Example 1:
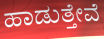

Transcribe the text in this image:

ಹಾಡುತ್ತೇವೆ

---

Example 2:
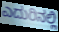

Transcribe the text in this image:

ಎದುರಿನಲ್ಲಿ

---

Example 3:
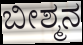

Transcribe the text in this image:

ಬೀಶ್ಮನ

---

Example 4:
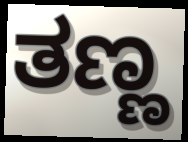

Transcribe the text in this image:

ತಣ್ಣ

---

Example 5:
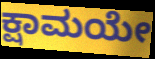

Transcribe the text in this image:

ಕ್ಷಾಮಯೇ